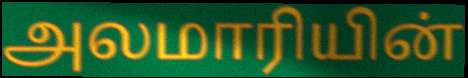
அலமாரியின்